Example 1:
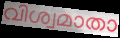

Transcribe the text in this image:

വിശ്വമാതാ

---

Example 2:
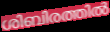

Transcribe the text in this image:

ശിബിരത്തിൽ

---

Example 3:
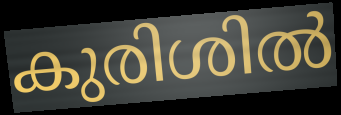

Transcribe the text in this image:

കുരിശിൽ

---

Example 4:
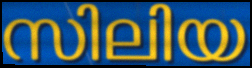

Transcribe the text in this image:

സിലിയ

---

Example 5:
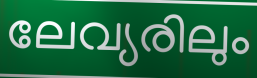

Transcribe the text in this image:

ലേവ്യരിലും